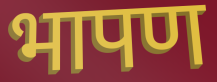
भापण